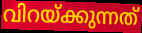
വിറയ്ക്കുന്നത്